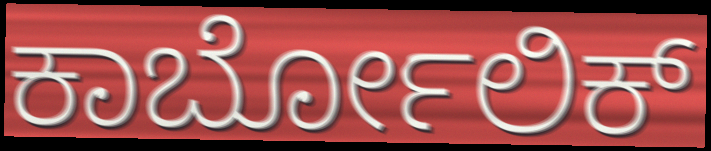
ಕಾರ್ಬೋಲಿಕ್